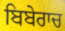
ਬਿਬੇਰਾਚ